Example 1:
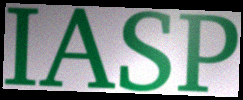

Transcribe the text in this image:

IASP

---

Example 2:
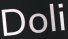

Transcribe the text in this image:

Doli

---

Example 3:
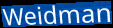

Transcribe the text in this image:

Weidman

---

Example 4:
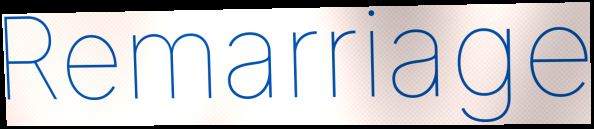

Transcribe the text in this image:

Remarriage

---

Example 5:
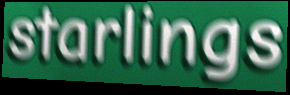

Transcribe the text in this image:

starlings